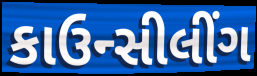
કાઉન્સીલીંગ